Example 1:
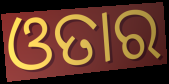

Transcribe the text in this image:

ଓତାର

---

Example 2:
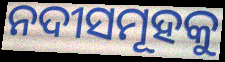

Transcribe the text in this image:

ନଦୀସମୂହକୁ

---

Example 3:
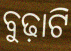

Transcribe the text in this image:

ବୁଢ଼ାଟି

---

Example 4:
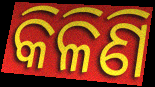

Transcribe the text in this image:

କିଳିଣି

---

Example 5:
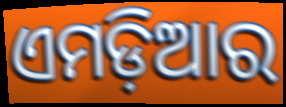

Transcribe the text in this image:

ଏମଡ଼ିଆର